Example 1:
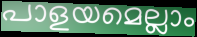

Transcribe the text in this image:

പാളയമെല്ലാം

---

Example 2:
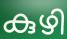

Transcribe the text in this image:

കുഴി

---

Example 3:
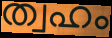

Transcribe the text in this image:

ത്വഹം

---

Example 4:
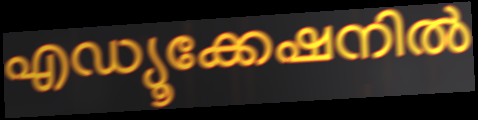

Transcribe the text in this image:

എഡ്യൂക്കേഷനിൽ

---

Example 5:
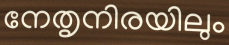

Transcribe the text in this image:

നേതൃനിരയിലും